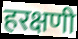
हरक्षणी